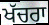
ਖੱਚਰਾ